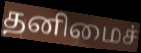
தனிமைச்